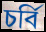
চর্বি